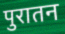
पुरातन